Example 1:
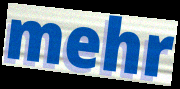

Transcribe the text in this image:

mehr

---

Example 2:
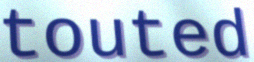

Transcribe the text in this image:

touted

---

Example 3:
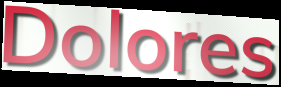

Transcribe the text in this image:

Dolores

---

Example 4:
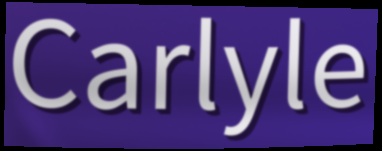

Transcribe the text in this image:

Carlyle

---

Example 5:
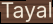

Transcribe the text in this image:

Tayal